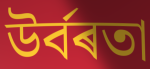
উৰ্বৰতা